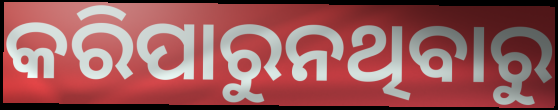
କରିପାରୁନଥିବାରୁ